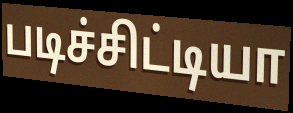
படிச்சிட்டியா